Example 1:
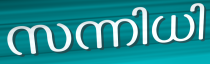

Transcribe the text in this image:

സന്നിധി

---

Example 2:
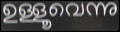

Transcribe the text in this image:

ഉള്ളൂവെന്നു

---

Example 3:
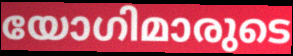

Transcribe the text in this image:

യോഗിമാരുടെ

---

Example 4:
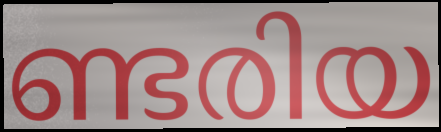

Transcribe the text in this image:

ണ്ടരിയ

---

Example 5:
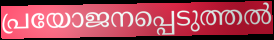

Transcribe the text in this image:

പ്രയോജനപ്പെടുത്തൽ